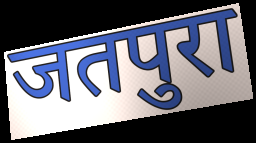
जतपुरा